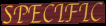
SPECIFIC